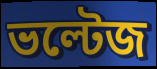
ভল্টেজ